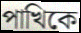
পাখিকে